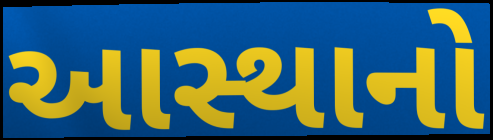
આસ્થાનો